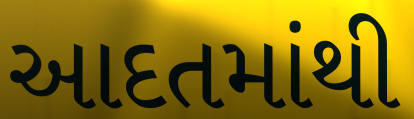
આદતમાંથી